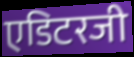
एडिटरजी